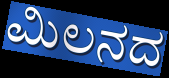
ಮಿಲನದ